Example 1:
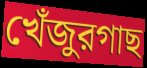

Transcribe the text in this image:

খেঁজুরগাছ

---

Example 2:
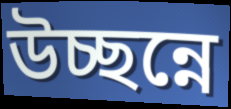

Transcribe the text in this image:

উচ্ছন্নে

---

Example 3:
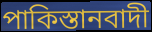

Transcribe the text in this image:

পাকিস্তানবাদী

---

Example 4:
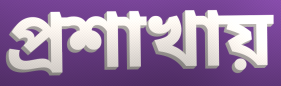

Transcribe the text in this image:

প্রশাখায়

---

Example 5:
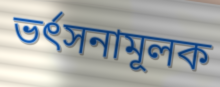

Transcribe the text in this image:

ভর্ৎসনামূলক